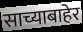
साच्याबाहेर